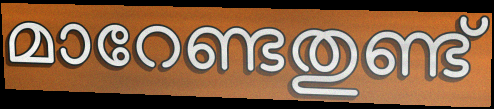
മാറേണ്ടതുണ്ട്